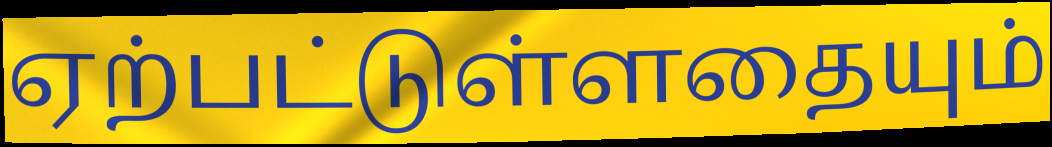
ஏற்பட்டுள்ளதையும்